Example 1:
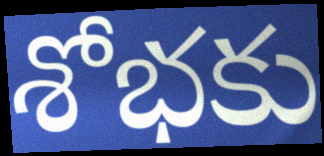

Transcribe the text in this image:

శోభకు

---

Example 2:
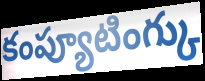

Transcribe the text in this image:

కంప్యూటింగ్కు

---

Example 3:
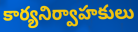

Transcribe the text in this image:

కార్యనిర్వాహకులు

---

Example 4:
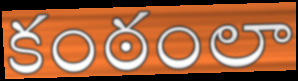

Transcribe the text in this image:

కంఠంలా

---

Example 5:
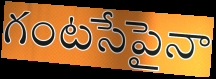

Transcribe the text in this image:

గంటసేపైనా